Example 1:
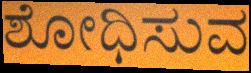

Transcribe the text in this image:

ಶೋಧಿಸುವ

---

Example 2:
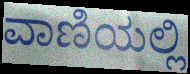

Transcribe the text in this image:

ವಾಣಿಯಲ್ಲಿ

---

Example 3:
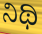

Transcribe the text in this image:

ನಿಥಿ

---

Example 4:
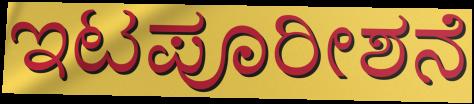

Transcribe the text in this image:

ಇಟಪೂರೀಶನೆ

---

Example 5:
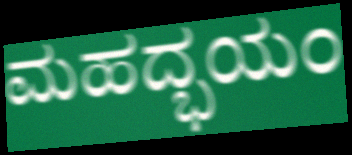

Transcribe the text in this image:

ಮಹದ್ಭಯಂ